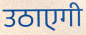
उठाएगी